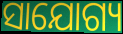
ସାଯୋଗ୍ୟ